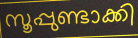
സൂപ്പുണ്ടാക്കി